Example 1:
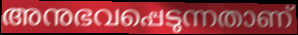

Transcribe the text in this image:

അനുഭവപ്പെടുന്നതാണ്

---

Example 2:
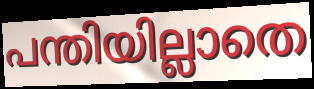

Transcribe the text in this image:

പന്തിയില്ലാതെ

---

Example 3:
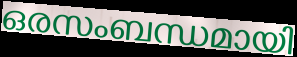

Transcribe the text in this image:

ഒരസംബന്ധമായി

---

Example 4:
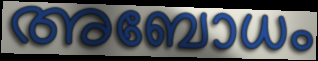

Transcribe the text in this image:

അബോധം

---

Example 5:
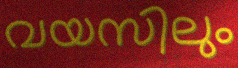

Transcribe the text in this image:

വയസിലും